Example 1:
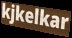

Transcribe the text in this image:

kjkelkar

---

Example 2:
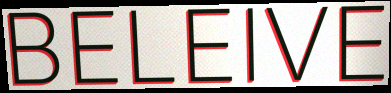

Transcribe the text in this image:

BELEIVE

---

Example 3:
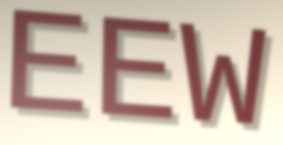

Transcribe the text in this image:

EEW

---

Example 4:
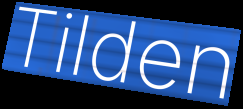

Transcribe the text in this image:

Tilden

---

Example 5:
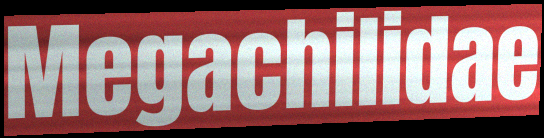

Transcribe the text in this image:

Megachilidae